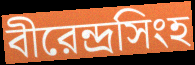
বীরেন্দ্রসিংহ